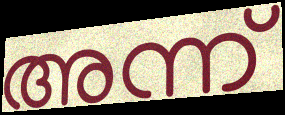
അന്ന്